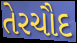
તેરચૌદ